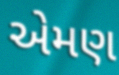
એમણ